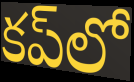
కప్‌లో